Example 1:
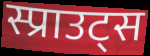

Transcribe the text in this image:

स्प्राउट्स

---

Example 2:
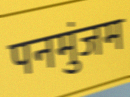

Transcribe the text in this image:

पनमुंजम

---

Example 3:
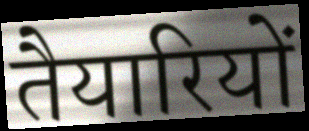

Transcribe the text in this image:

तैयारियों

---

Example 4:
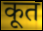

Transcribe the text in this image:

कूत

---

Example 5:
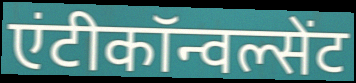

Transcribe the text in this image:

एंटीकॉन्वल्सेंट